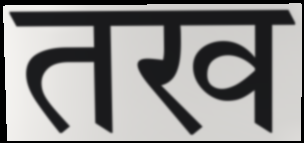
तख